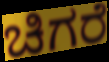
ಚಿಗರೆ